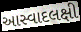
આસ્વાદલક્ષી